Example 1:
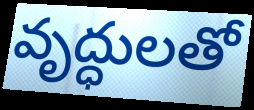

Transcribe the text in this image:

వృద్ధులతో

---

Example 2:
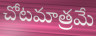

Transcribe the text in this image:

చోటమాత్రమే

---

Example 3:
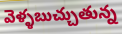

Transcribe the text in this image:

వెళ్ళబుచ్చుతున్న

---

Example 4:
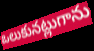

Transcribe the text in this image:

ఒలుకునట్లుగాను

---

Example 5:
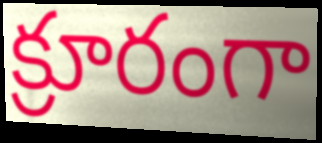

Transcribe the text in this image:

క్రూరంగా